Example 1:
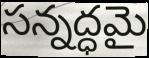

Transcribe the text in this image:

సన్నద్ధమై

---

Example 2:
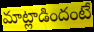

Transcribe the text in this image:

మాట్లాడిందంటే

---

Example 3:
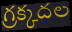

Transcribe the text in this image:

గ్రక్కదల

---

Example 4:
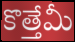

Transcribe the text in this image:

కొత్తేమీ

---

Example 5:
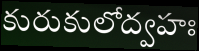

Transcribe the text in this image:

కురుకులోద్వహః